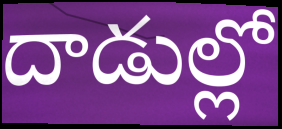
దాడుల్లో